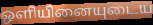
ஒளியினையுடைய